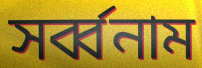
সৰ্ব্বনাম